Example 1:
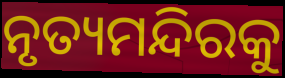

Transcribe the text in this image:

ନୃତ୍ୟମନ୍ଦିରକୁ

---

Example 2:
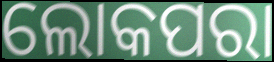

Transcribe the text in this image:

ଲୋକପରା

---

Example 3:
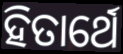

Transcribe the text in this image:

ହିତାର୍ଥେ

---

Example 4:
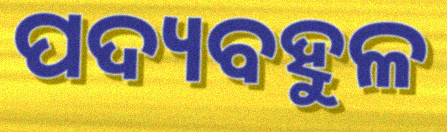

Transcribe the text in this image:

ପଦ୍ୟବହୁଳ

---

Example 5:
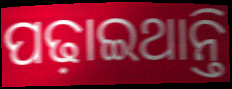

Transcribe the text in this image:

ପଢ଼ାଇଥାନ୍ତି